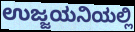
ಉಜ್ಜಯನಿಯಲ್ಲಿ